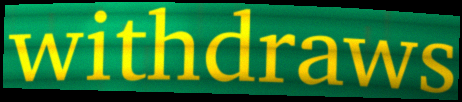
withdraws